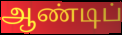
ஆண்டிப்